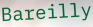
Bareilly